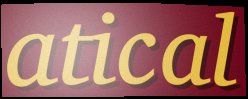
atical